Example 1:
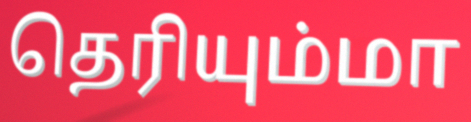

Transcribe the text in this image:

தெரியும்மா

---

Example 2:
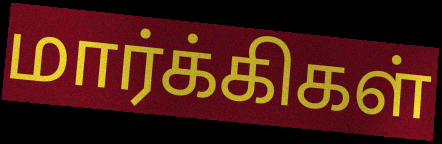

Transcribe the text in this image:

மார்க்கிகள்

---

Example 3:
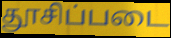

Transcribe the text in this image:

தூசிப்படை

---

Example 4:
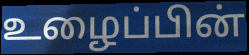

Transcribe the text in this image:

உழைப்பின்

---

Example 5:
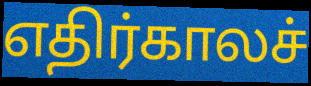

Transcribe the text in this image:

எதிர்காலச்